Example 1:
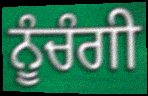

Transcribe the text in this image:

ਨੂੰਚੰਗੀ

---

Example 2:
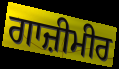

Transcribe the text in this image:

ਗਾਜ਼ੀਮੀਰ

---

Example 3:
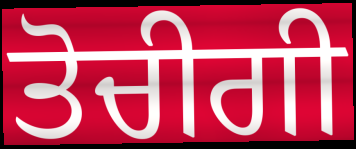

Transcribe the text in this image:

ਤੋਚੀਗੀ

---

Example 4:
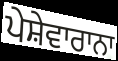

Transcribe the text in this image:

ਪੇਸ਼ੇਵਾਰਾਨਾ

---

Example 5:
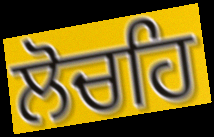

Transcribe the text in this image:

ਲੋਚਹਿ